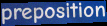
preposition